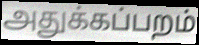
அதுக்கப்பறம்